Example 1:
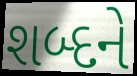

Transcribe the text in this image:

શબ્દને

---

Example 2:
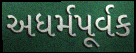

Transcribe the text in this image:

અધર્મપૂર્વક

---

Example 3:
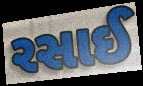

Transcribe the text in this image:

રસાઈ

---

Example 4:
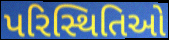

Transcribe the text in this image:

પરિસ્થિતિઓ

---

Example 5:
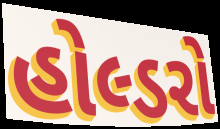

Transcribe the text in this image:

હોલ્ડરો